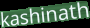
kashinath